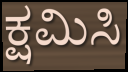
ಕ್ಷಮಿಸಿ